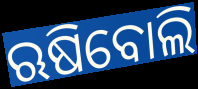
ଋଷିବୋଲି